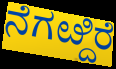
ನೆಗೞ್ದಿರೆ